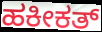
ಹಕೀಕತ್